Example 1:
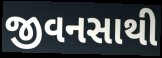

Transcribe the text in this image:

જીવનસાથી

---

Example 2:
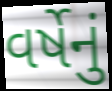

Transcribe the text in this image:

વર્ષેનું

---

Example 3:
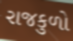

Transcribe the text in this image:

રાજકુળો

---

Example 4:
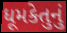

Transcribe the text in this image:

ધૂમકેતુનું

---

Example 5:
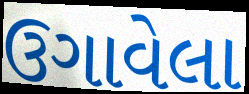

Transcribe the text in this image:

ઉગાવેલા